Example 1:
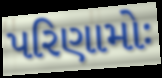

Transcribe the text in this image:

પરિણામોઃ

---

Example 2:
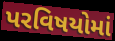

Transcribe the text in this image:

પરવિષયોમાં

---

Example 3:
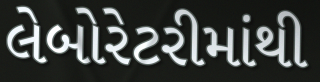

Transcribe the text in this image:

લેબોરેટરીમાંથી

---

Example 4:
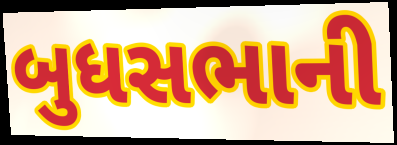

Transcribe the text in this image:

બુધસભાની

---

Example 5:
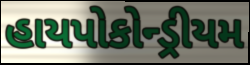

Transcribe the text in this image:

હાયપોકોન્ડ્રીયમ